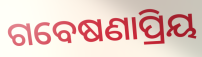
ଗବେଷଣାପ୍ରିୟ